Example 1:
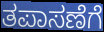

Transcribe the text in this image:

ತಪಾಸಣೆಗೆ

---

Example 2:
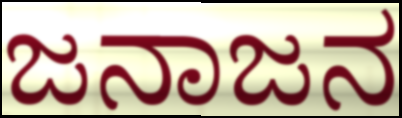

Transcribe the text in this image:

ಜನಾಜನ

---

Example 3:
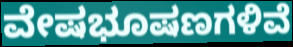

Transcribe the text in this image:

ವೇಷಭೂಷಣಗಳಿವೆ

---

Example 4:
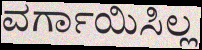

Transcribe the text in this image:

ವರ್ಗಾಯಿಸಿಲ್ಲ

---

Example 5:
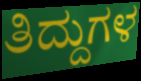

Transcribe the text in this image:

ತಿದ್ದುಗಳ